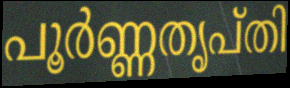
പൂർണ്ണതൃപ്തി